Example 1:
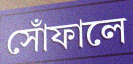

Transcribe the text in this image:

সোঁফালে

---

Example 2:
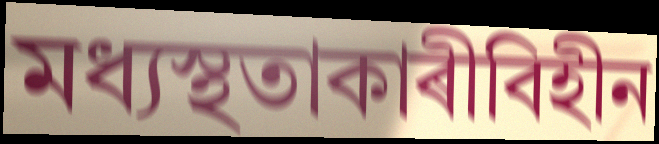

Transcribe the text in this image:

মধ্যস্থতাকাৰীবিহীন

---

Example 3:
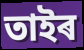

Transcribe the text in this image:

তাইৰ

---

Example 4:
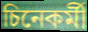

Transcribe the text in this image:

চিনেকৰ্মী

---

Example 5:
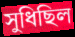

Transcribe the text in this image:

সুধিছিল